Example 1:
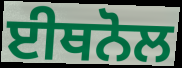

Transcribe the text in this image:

ਈਥਨੋਲ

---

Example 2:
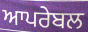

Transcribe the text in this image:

ਆਪਰੇਬਲ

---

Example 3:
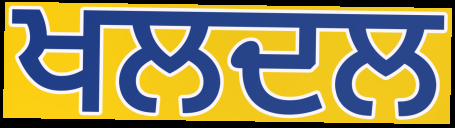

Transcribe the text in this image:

ਖਲਦਲ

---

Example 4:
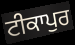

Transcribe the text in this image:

ਟੀਕਾਪੁਰ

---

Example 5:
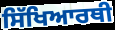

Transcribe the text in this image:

ਸਿੱਖਿਆਰਥੀ